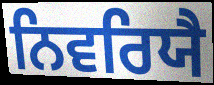
ਨਿਵਰਿਯੈ